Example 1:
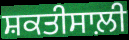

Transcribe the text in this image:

ਸ਼ਕਤੀਸਾਲ਼ੀ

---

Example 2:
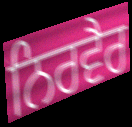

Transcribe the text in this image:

ਨਿਰਵੈਰ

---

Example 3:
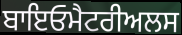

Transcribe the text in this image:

ਬਾਇਓਮੈਟਰੀਅਲਸ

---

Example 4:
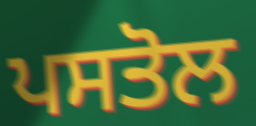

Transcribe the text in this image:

ਪਸਤੋਲ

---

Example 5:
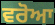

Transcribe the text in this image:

ਵਰੋਆ